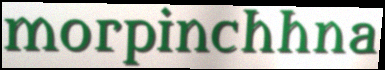
morpinchhna